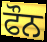
ਫੌਨ